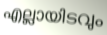
എല്ലായിടവും